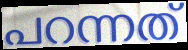
പറന്നത്